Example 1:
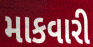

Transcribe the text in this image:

માકવારી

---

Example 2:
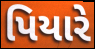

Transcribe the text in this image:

પિયારે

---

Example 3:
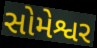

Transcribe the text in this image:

સોમેશ્વર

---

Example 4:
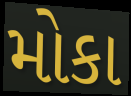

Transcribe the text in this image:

મોકા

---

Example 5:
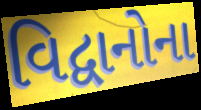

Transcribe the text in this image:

વિદ્વાનોના